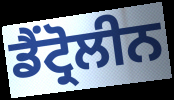
ਡੈਂਟ੍ਰੋਲੀਨ